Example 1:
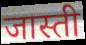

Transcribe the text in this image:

जास्ती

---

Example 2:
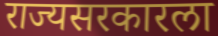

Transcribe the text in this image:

राज्यसरकारला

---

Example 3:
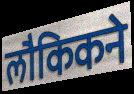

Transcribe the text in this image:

लौकिकने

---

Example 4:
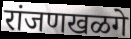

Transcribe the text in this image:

रांजणखळगे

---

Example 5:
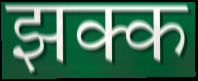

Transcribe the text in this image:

झक्क